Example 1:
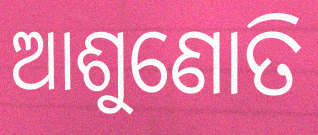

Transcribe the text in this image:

ଆଶୁଣୋତି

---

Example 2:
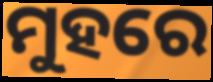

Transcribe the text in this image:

ମୁହରେ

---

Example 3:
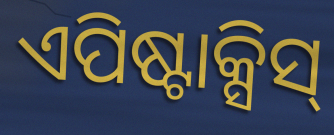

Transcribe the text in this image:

ଏପିଷ୍ଟାକ୍ସିସ୍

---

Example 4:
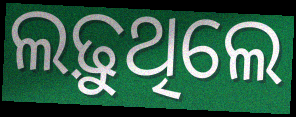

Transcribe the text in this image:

ଲଢ଼ୁଥିଲେ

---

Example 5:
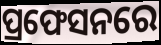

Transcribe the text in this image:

ପ୍ରଫେସନରେ